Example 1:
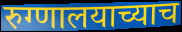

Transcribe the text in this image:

रुग्णालयाच्याच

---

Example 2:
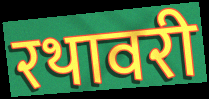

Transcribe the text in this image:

रथावरी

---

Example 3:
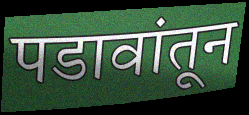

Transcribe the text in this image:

पडावांतून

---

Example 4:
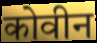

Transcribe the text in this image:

कोवीन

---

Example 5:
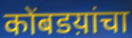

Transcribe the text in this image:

कोंबडय़ांचा